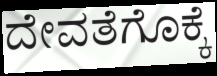
ದೇವತೆಗೊಕ್ಕೆ